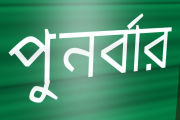
পুনর্বার